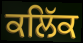
ਕਲਿੱਕ